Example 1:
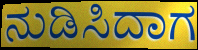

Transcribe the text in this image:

ನುಡಿಸಿದಾಗ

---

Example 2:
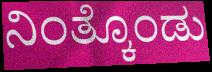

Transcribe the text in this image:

ನಿಂತ್ಕೊಂಡು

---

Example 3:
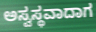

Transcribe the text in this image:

ಅಸ್ವಸ್ಥವಾದಾಗ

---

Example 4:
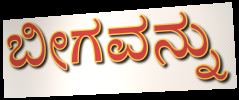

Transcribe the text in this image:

ಬೀಗವನ್ನು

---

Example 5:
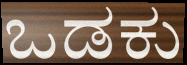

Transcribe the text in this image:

ಒಡಕು